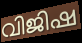
വിജിഷ